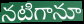
నటిగానూ